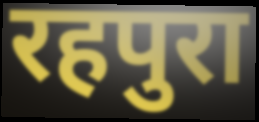
रहपुरा